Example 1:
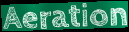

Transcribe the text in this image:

Aeration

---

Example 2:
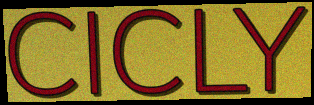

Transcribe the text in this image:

CICLY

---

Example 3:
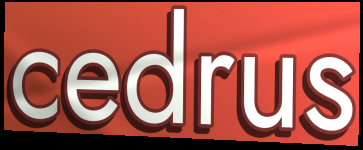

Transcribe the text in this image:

cedrus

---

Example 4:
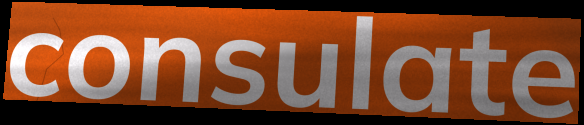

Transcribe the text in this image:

consulate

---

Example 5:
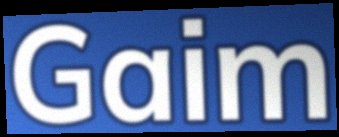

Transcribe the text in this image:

Gaim